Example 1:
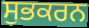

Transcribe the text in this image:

ਸੁਭਕਰਨ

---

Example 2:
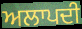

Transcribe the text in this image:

ਅਲਾਪਦੀ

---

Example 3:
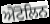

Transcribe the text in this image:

ਐਂਟੋਲਿਨ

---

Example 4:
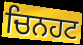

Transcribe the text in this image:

ਚਿਨਹਟ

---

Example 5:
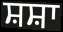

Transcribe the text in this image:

ਸ਼ਸ਼ਾ